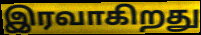
இரவாகிறது